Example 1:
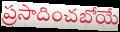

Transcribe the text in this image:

ప్రసాదించబోయే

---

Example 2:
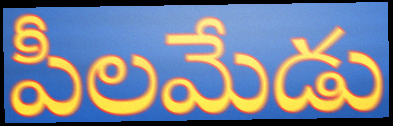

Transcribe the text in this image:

పీలమేడు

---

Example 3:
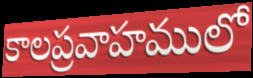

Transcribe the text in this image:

కాలప్రవాహములో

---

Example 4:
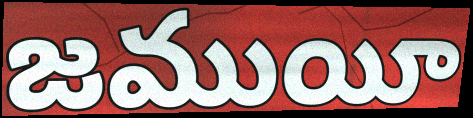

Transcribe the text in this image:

జముయీ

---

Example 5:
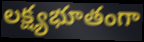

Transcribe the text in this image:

లక్ష్యభూతంగా